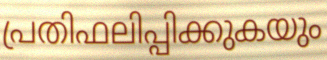
പ്രതിഫലിപ്പിക്കുകയും